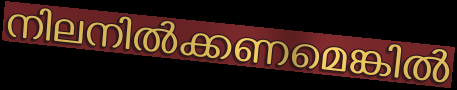
നിലനിൽക്കണമെങ്കിൽ